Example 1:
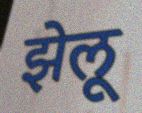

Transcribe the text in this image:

झेलू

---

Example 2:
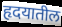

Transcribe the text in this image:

हृदयातील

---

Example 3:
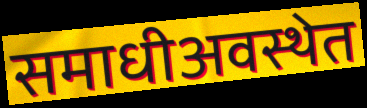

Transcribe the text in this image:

समाधीअवस्थेत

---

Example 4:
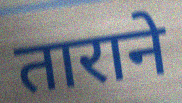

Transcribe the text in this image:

ताराने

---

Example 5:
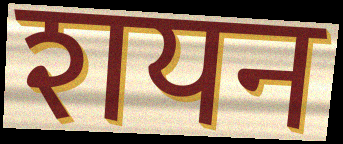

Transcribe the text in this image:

शयन